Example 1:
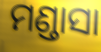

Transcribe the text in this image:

ମଣ୍ଡାସା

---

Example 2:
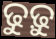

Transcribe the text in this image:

ଢୁଢ଼ୁ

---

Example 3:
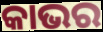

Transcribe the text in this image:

କାଭର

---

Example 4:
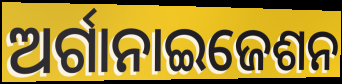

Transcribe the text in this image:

ଅର୍ଗାନାଇଜେଶନ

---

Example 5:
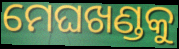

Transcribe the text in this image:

ମେଘଖଣ୍ଡକୁ